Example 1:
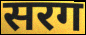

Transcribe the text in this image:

सरग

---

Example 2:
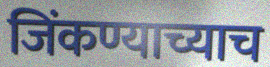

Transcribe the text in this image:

जिंकण्याच्याच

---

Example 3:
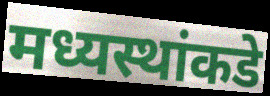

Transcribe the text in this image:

मध्यस्थांकडे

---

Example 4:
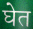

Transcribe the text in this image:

घेत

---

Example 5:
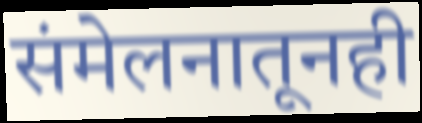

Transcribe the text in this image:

संमेलनातूनही